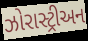
ઝોરાસ્ટ્રીઅન